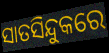
ସାତସିନ୍ଦୁକରେ